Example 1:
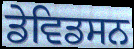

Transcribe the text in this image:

ਡੇਵਿਡਸਨ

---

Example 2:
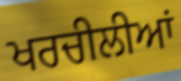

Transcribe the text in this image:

ਖਰਚੀਲੀਆਂ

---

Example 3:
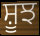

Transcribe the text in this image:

ਸ਼ੂਝ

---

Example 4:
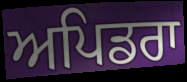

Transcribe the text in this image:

ਅਪਿਡਰਾ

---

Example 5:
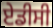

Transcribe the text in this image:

ਏਡੀਸੀ